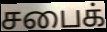
சபைக்